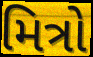
મિત્રો